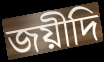
জয়ীদি